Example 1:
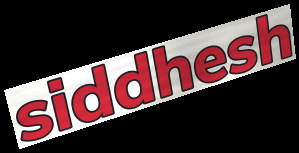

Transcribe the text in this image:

siddhesh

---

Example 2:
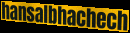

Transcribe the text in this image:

hansalbhachech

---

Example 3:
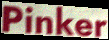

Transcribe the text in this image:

Pinker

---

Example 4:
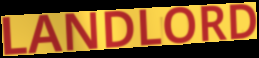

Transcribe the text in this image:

LANDLORD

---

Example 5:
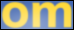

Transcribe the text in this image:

om